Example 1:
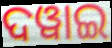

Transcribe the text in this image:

ଦୱାଇ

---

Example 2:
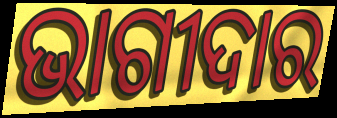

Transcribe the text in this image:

ଭାଗୀଦାର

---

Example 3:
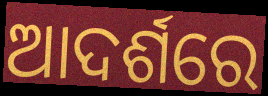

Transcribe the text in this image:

ଆଦର୍ଶରେ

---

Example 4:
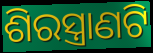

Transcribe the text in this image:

ଶିରସ୍ତ୍ରାଣଟି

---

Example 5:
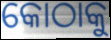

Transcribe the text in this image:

କୋଠାକୁ